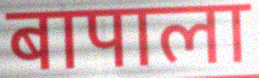
बापाला